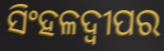
ସିଂହଳଦ୍ୱୀପର